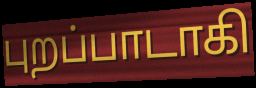
புறப்பாடாகி